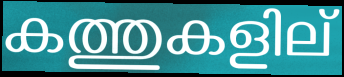
കത്തുകളില്